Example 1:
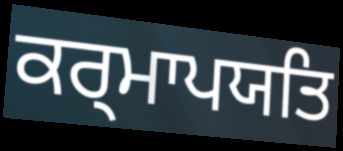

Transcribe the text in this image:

ਕਰ੍ਮਾਪਯਤਿ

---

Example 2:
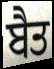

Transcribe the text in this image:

ਬੈਤ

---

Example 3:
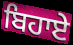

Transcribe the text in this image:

ਬਿਹਾਏ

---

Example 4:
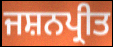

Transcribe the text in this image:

ਜਸ਼ਨਪ੍ਰੀਤ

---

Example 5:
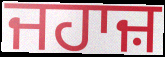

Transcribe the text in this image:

ਜਹਾਜ਼